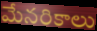
మేనరికాలు